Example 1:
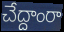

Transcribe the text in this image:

చేద్దాంరా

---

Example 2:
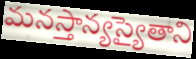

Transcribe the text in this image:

మనస్తాన్యస్యైతాని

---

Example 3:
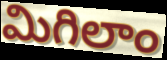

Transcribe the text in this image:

మిగిలాం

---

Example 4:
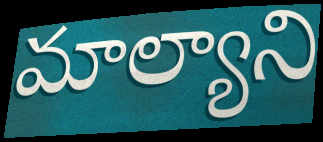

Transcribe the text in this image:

మాల్యాని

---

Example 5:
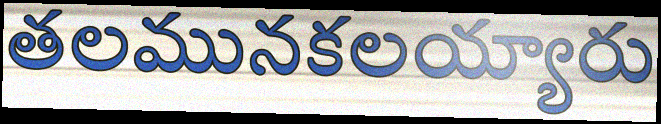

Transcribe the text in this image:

తలమునకలయ్యారు